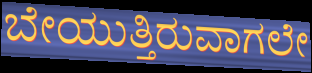
ಬೇಯುತ್ತಿರುವಾಗಲೇ